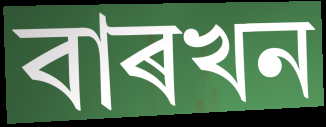
বাৰখন